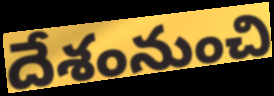
దేశంనుంచి